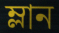
ম্লান